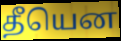
தீயென